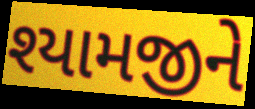
શ્યામજીને